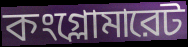
কংগ্লোমারেট